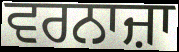
ਵਰਨਾਜ਼ਾ